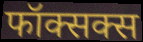
फॉक्सक्स